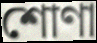
শোণা